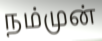
நம்முன்